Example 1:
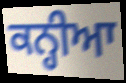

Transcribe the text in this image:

ਕਨ੍ਹੀਆ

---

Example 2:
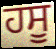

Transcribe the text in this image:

ਹਸੂ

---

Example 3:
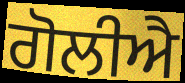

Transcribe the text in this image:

ਗੋਲੀਐ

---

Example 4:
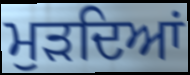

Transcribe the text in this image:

ਮੁੜਦਿਆਂ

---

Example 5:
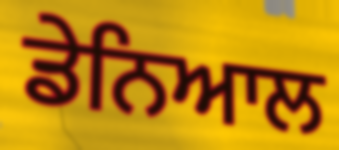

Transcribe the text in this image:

ਡੇਨਿਆਲ